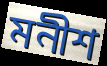
মনীশ